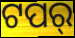
ଟପର୍